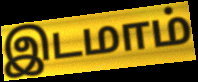
இடமாம்